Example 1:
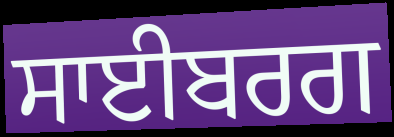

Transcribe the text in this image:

ਸਾਈਬਰਗ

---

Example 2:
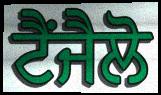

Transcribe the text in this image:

ਟੈਂਜੈਲੋ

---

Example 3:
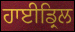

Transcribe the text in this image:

ਹਾਈਡ੍ਰਿਲ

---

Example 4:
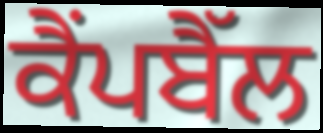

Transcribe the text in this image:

ਕੈਂਪਬੈੱਲ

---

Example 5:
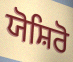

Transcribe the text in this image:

ਯੋਸ਼ਿਰੋ